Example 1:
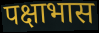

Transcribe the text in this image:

पक्षाभास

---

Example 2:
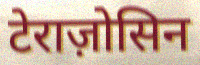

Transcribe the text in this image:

टेराज़ोसिन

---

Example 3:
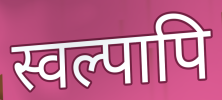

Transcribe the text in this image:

स्वल्पापि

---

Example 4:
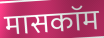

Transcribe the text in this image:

मासकॉम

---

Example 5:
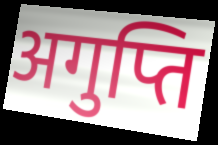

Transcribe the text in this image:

अगुप्ति